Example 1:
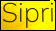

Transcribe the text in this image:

Sipri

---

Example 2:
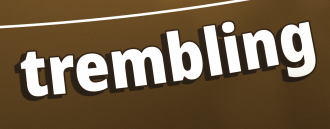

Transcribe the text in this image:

trembling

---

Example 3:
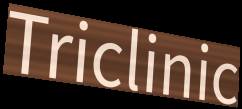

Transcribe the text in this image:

Triclinic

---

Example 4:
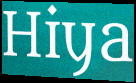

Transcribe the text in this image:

Hiya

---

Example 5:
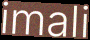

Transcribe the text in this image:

imali